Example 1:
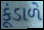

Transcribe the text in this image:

કૂંડાળે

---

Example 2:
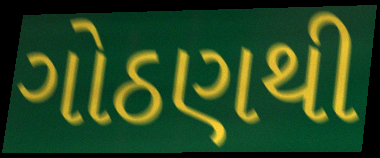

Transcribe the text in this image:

ગોઠણથી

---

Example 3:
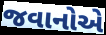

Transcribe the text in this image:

જવાનોએ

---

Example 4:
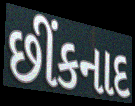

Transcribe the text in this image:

છીંકનાદ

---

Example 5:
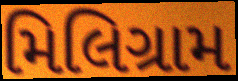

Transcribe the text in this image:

મિલિગ્રામ